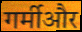
गर्मीऔर